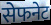
सेफनेट